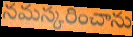
నమస్కరించాను